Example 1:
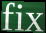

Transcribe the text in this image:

fix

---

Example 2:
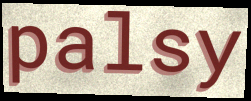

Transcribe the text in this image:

palsy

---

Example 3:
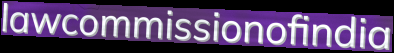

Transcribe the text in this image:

lawcommissionofindia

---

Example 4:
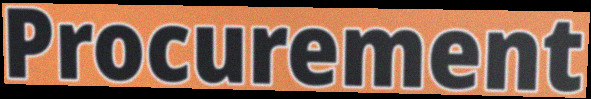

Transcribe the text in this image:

Procurement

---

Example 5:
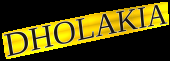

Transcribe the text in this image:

DHOLAKIA